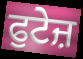
ਫੁਟੇਜ਼